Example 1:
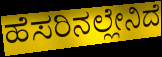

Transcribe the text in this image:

ಹೆಸರಿನಲ್ಲೇನಿದೆ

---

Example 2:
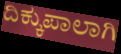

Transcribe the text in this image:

ದಿಕ್ಕುಪಾಲಾಗಿ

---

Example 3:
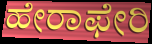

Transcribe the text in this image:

ಹೇರಾಫೇರಿ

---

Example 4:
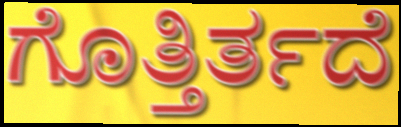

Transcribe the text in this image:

ಗೊತ್ತಿರ್ತದೆ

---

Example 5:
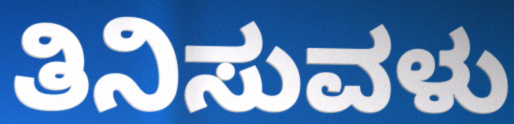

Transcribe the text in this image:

ತಿನಿಸುವಳು